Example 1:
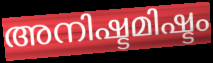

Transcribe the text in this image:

അനിഷ്ടമിഷ്ടം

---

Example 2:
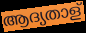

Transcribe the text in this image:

ആദ്യതാള്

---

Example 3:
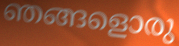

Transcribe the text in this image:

ഞങ്ങളൊരു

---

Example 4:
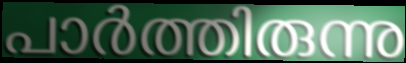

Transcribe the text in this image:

പാർത്തിരുന്നു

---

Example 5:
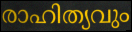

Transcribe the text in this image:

രാഹിത്യവും